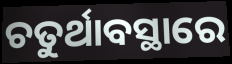
ଚତୁର୍ଥାବସ୍ଥାରେ